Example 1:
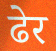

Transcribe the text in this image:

ढेर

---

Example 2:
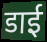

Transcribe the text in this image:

डाई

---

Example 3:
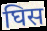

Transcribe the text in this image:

घिस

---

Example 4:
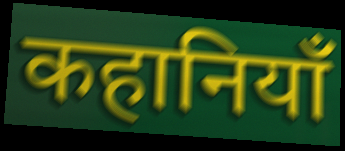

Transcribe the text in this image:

कहानियाँ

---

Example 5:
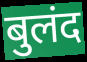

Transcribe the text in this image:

बुलंद